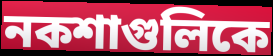
নকশাগুলিকে